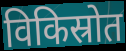
विकिस्रोत